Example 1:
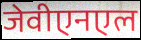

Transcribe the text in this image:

जेवीएनएल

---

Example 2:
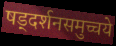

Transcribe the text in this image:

षड्दर्शनसमुच्चये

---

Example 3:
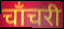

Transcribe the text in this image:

चाँचरी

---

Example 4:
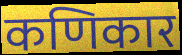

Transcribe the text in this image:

कणिकार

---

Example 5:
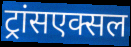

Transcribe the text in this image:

ट्रांसएक्सल